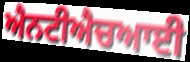
ਐਨਟੀਐਚਆਈ